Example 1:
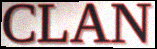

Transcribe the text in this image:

CLAN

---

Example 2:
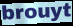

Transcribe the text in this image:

brouyt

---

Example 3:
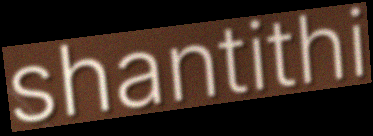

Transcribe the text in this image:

shantithi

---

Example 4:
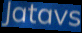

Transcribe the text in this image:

Jatavs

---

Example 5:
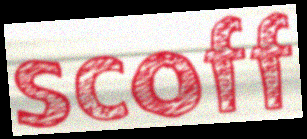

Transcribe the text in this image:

scoff